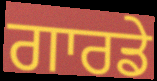
ਗਾਰਡੇ